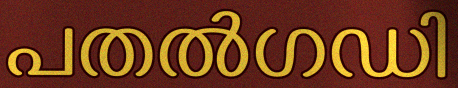
പതൽഗഡി